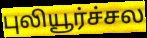
புலியூர்ச்சல